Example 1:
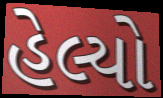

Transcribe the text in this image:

હેલ્યો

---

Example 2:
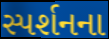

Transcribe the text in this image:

સ્પર્શનના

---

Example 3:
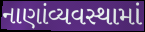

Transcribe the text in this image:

નાણાંવ્યવસ્થામાં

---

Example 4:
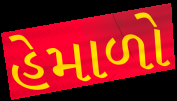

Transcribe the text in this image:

હેમાળો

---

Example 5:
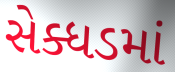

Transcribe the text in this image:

સેક્ધડમાં